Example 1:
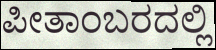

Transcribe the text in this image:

ಪೀತಾಂಬರದಲ್ಲಿ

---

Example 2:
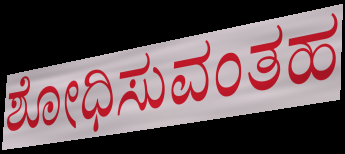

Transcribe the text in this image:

ಶೋಧಿಸುವಂತಹ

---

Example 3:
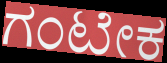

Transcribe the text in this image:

ಗಂಟೇಕ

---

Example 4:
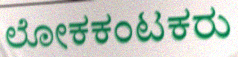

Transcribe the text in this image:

ಲೋಕಕಂಟಕರು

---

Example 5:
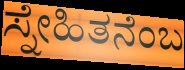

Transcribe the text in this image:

ಸ್ನೇಹಿತನೆಂಬ